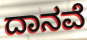
ದಾನವೆ